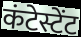
कंटेस्टेंट